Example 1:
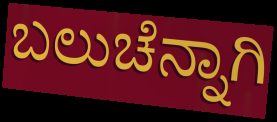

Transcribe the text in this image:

ಬಲುಚೆನ್ನಾಗಿ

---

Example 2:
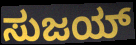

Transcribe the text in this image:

ಸುಜಯ್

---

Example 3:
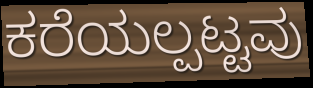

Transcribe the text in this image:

ಕರೆಯಲ್ಪಟ್ಟವು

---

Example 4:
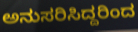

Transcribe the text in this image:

ಅನುಸರಿಸಿದ್ದರಿಂದ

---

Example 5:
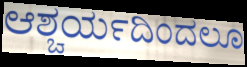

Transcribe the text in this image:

ಆಶ್ಚರ್ಯದಿಂದಲೂ